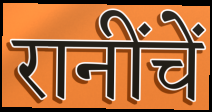
रानींचें